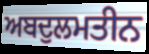
ਅਬਦੁਲਮਤੀਨ